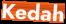
Kedah